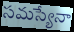
సమస్యేనా